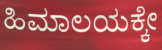
ಹಿಮಾಲಯಕ್ಕೇ